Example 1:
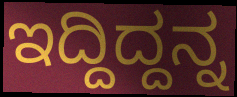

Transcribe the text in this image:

ಇದ್ದಿದ್ದನ್ನ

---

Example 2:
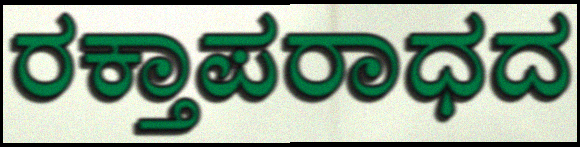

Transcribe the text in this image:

ರಕ್ತಾಪರಾಧದ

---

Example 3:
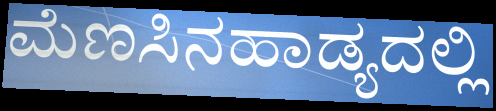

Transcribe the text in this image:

ಮೆಣಸಿನಹಾಡ್ಯದಲ್ಲಿ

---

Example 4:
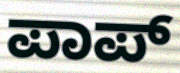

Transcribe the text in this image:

ಪಾಪ್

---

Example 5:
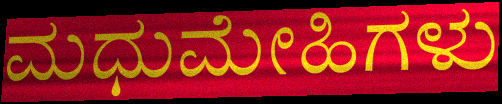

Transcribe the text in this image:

ಮಧುಮೇಹಿಗಳು